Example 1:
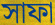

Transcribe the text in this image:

সাফা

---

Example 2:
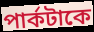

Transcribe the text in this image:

পার্কটাকে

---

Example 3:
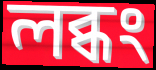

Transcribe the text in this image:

লব্ধং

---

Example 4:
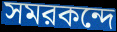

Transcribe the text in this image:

সমরকন্দে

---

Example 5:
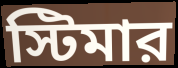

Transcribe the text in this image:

স্টিমার